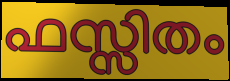
ഫസ്സിതം